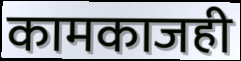
कामकाजही